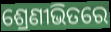
ଶ୍ରେଣୀଭିତରେ